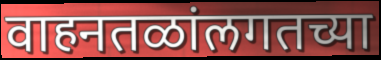
वाहनतळांलगतच्या